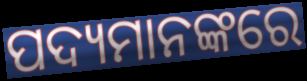
ପଦ୍ୟମାନଙ୍କରେ